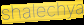
shalechya